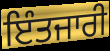
ਇੰਤਜਾਰੀ